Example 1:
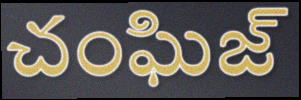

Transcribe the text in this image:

చంఘిజ్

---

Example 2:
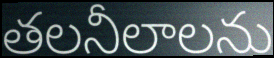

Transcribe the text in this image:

తలనీలాలను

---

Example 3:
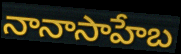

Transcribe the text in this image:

నానాసాహేబ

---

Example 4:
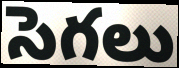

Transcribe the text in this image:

సెగలు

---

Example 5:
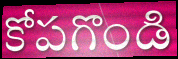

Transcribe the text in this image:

కోపగొండి